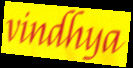
vindhya